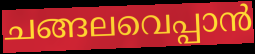
ചങ്ങലവെപ്പാൻ